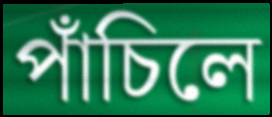
পাঁচিলে